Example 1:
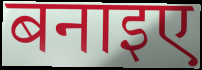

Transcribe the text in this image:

बनाइए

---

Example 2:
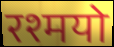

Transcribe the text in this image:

रश्मयो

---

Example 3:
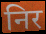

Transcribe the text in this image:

निर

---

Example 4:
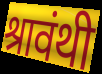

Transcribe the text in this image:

श्रावंथी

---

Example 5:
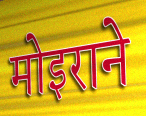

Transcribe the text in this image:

मोइराने